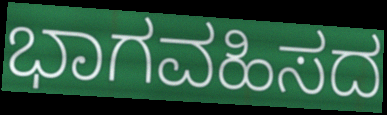
ಭಾಗವಹಿಸದ